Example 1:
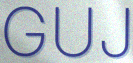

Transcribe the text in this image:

GUJ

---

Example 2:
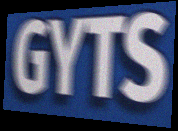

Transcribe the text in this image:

GYTS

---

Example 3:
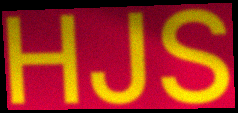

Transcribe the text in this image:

HJS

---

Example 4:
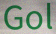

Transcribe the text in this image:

Gol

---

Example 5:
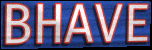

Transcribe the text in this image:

BHAVE